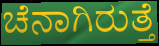
ಚೆನಾಗಿರುತ್ತೆ